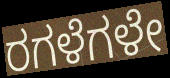
ರಗಳೆಗಳೇ